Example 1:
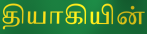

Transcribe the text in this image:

தியாகியின்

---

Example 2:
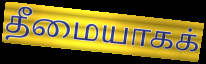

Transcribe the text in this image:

தீமையாகக்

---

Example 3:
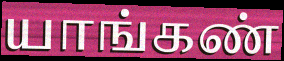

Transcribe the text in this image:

யாங்கண்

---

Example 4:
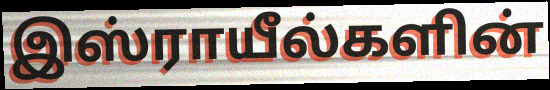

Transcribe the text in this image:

இஸ்ராயீல்களின்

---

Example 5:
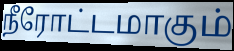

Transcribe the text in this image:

நீரோட்டமாகும்